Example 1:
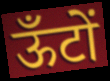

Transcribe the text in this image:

ऊँटों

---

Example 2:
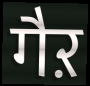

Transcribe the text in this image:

गैऱ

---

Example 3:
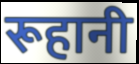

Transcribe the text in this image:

रूहानी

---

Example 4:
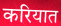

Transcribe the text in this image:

करियात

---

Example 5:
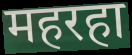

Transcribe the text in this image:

महरहा